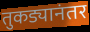
तुकड्यानंतर